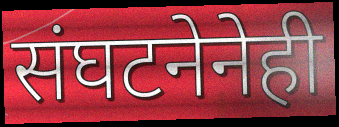
संघटनेनेही